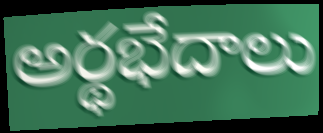
అర్థభేదాలు